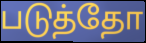
படுத்தோ